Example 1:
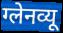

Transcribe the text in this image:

ग्लेनव्यू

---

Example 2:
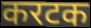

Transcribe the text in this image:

करटक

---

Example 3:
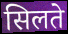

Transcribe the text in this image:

सिलते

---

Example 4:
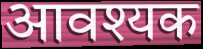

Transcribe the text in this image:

आवश्‍यक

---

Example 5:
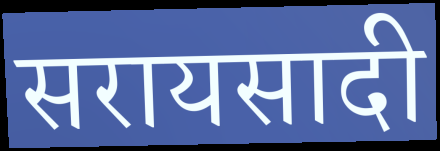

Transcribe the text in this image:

सरायसादी